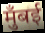
मुँबई